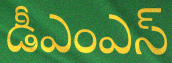
డీఎంఎస్